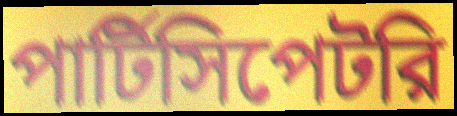
পার্টিসিপেটরি